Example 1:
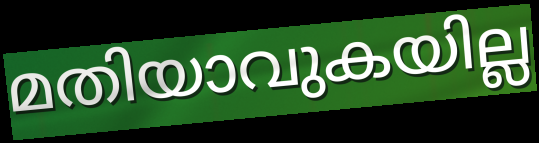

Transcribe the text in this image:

മതിയാവുകയില്ല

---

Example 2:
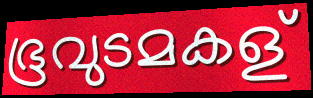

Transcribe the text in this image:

ഭൂവുടമകള്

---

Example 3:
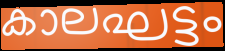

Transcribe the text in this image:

കാലഘട്ടം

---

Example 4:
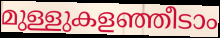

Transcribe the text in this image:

മുള്ളുകളഞ്ഞീടാം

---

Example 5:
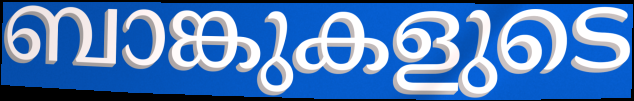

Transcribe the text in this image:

ബാങ്കുകളുടെ